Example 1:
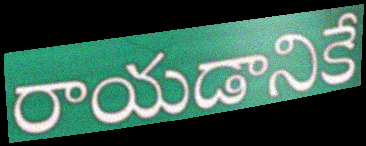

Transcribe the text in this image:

రాయడానికే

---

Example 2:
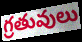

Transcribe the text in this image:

గ్రతువులు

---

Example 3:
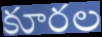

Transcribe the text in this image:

కూరల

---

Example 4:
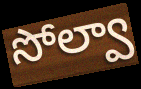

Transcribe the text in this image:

సోల్వా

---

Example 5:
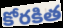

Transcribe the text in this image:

కోరకిత